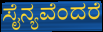
ಸೈನ್ಯವೆಂದರೆ